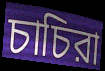
চাচিরা